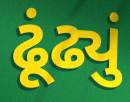
ઢૂંઢ્યું